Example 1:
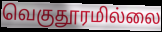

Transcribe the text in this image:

வெகுதூரமில்லை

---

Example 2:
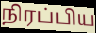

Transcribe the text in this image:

நிரப்பிய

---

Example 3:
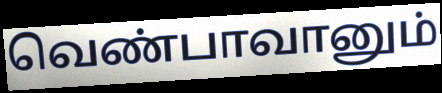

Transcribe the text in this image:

வெண்பாவானும்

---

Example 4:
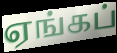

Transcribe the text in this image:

ஏங்கப்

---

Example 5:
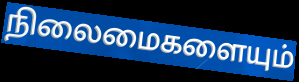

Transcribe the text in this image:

நிலைமைகளையும்